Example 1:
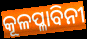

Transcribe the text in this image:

କୂଳପ୍ଳାବିନୀ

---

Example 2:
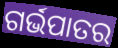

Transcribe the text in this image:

ଗର୍ଭପାତର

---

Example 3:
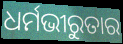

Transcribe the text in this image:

ଧର୍ମଭୀରୁତାର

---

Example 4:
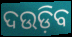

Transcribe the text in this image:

ଦଉଡ଼ିବ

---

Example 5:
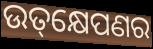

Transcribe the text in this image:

ଉତ୍‌କ୍ଷେପଣର